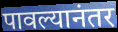
पावल्यानंतर